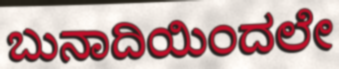
ಬುನಾದಿಯಿಂದಲೇ